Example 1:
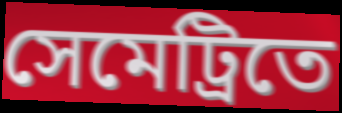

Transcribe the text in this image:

সেমেট্রিতে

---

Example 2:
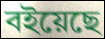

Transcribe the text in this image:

বইয়েছে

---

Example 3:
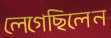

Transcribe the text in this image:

লেগেছিলেন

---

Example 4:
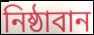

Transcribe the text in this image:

নিষ্ঠাবান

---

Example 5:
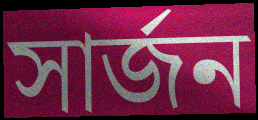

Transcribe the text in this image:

সার্জন